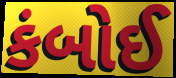
કંબોઈ